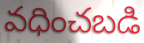
వధించబడి